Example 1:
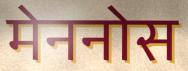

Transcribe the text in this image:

मेननोस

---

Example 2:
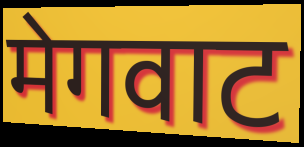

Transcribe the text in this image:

मेगवाट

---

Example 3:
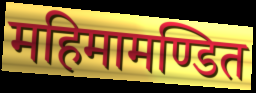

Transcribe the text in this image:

महिमामण्डित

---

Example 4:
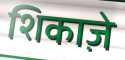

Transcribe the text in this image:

शिकाज़े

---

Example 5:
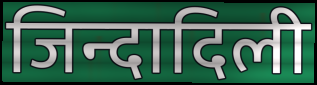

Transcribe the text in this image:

जिन्दादिली